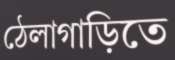
ঠেলাগাড়িতে